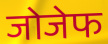
जोजेफ